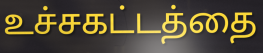
உச்சகட்டத்தை